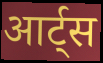
आर्ट्स